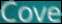
Cove